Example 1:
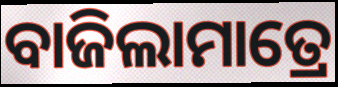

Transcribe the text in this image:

ବାଜିଲାମାତ୍ରେ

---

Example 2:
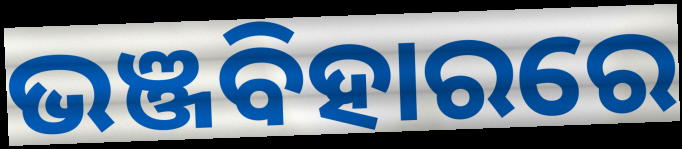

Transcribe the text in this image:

ଭଞ୍ଜବିହାରରେ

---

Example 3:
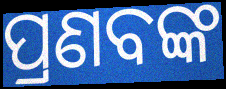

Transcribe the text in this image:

ପ୍ରଣବଙ୍କ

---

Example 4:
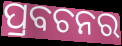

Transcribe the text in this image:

ପ୍ରବଚନର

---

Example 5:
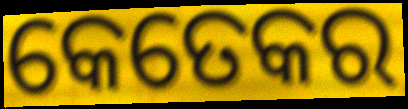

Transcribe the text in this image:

କେତେକର